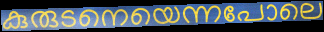
കുരുടനെയെന്നപോലെ